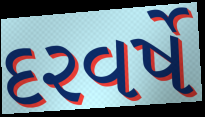
દરવર્ષે